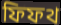
ফিফথ